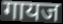
गायज